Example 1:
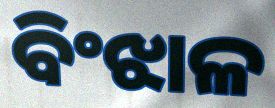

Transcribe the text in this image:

ବିଂଝାଳ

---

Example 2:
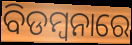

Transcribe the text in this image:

ବିଡମ୍ବନାରେ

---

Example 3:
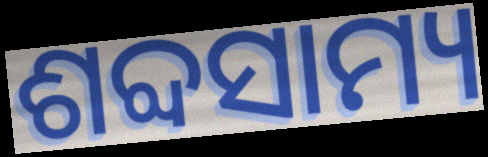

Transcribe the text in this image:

ଶବ୍ଦସାମ୍ୟ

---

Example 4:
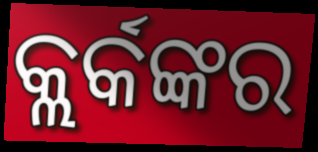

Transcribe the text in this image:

କ୍ଲର୍କଙ୍କର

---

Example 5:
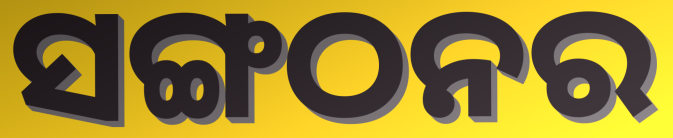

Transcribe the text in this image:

ସଙ୍ଗଠନର